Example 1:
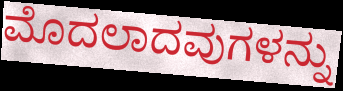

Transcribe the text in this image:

ಮೊದಲಾದವುಗಳನ್ನು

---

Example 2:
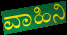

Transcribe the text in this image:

ವಾಹಿನಿ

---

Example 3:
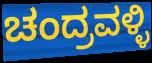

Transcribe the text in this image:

ಚಂದ್ರವಳ್ಳಿ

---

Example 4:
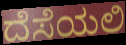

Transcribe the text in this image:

ದೆಸೆಯಲಿ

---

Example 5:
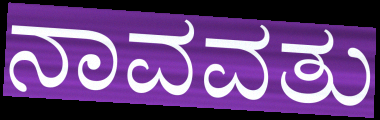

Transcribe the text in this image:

ನಾವವತು